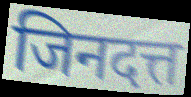
जिनदत्त